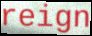
reign